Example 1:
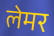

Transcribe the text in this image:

लेमर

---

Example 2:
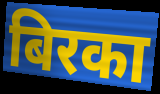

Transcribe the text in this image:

बिरका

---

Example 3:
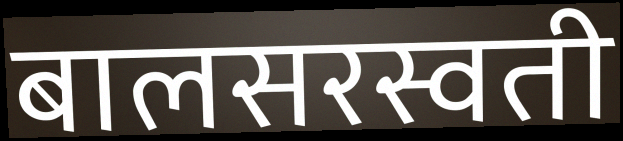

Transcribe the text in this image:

बालसरस्वती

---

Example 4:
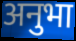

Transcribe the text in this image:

अनुभा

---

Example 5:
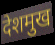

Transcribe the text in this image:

देशमुख